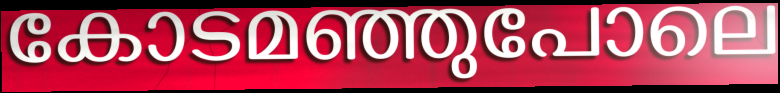
കോടമഞ്ഞുപോലെ